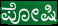
ಪೋಷಿ